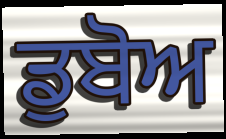
ਡੁਬੋਅ